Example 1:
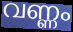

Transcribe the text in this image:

വണ്ണം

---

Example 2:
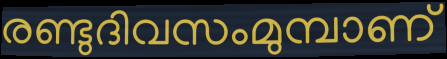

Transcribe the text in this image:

രണ്ടുദിവസംമുമ്പാണ്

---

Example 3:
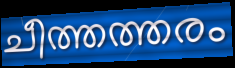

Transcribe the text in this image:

ചീത്തത്തരം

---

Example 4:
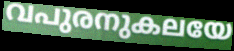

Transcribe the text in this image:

വപുരനുകലയേ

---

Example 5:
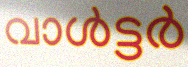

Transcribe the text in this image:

വാൾട്ടർ